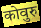
कोवुरु